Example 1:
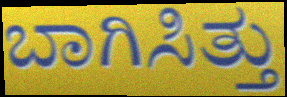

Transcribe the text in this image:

ಬಾಗಿಸಿತ್ತು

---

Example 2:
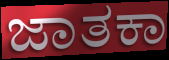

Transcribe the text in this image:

ಜಾತಕಾ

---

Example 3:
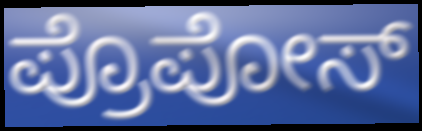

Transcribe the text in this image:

ಪ್ರೊಪೋಸ್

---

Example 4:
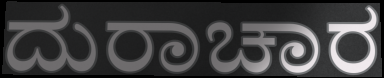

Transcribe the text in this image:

ದುರಾಚಾರ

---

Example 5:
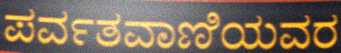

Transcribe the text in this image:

ಪರ್ವತವಾಣಿಯವರ